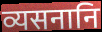
व्यसनानि